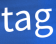
tag